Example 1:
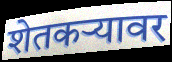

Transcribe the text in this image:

शेतकऱ्यावर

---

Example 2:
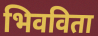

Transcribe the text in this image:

भिवविता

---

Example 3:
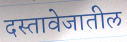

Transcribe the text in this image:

दस्तावेजातील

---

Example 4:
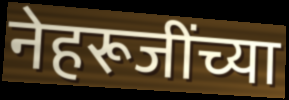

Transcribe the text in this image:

नेहरूजींच्या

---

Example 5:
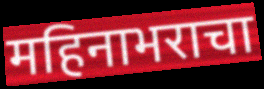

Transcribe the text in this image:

महिनाभराचा